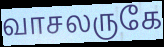
வாசலருகே